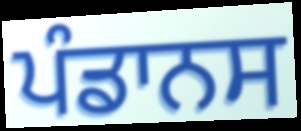
ਪੰਡਾਨਸ